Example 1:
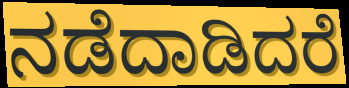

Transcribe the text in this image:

ನಡೆದಾಡಿದರೆ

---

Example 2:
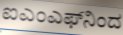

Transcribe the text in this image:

ಐಎಂಎಫ್‌ನಿಂದ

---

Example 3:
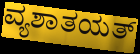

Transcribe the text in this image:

ವ್ಯಶಾತಯತ್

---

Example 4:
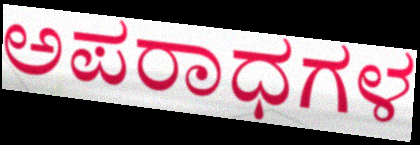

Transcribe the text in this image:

ಅಪರಾಧಗಳ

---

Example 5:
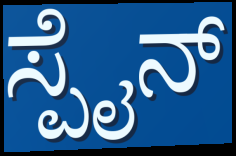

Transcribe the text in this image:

ಸ್ಪೈನ್